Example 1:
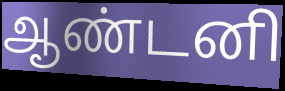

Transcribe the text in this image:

ஆண்டனி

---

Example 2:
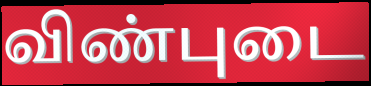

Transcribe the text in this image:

விண்புடை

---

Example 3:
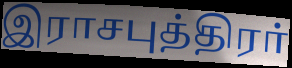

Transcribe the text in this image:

இராசபுத்திரர்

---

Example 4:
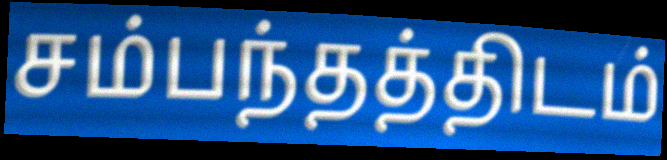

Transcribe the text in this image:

சம்பந்தத்திடம்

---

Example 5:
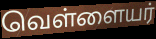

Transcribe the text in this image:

வெள்ளையர்